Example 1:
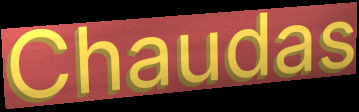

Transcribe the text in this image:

Chaudas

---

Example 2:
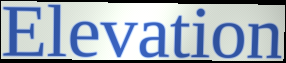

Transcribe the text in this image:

Elevation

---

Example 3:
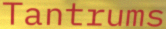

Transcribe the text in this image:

Tantrums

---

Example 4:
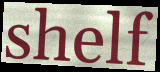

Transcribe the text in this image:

shelf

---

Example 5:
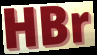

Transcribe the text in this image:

HBr